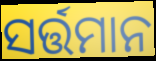
ସର୍ତ୍ତମାନ